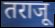
तराजू